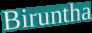
Biruntha